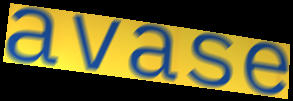
avase